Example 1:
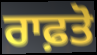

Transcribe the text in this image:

ਰਾਫ਼ਤੋ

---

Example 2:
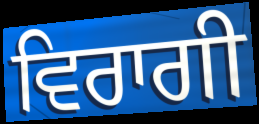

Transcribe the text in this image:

ਵਿਰਾਗੀ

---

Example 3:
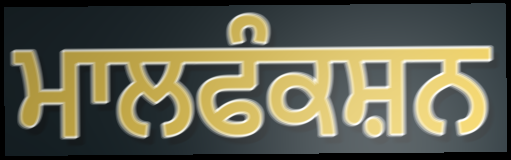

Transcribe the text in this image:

ਮਾਲਫੰਕਸ਼ਨ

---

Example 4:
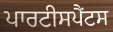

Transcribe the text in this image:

ਪਾਰਟੀਸਪੈਂਟਸ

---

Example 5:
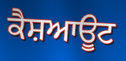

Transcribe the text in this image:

ਕੈਸ਼ਆਊਟ